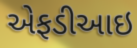
એફડીઆઇ